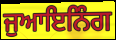
ਜੁਆਇਨਿੰਗ